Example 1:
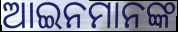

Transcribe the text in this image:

ଆଇନମାନଙ୍କ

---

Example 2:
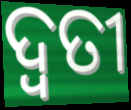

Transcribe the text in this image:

ଦ୍ଵତୀ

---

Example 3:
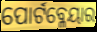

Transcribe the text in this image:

ପୋର୍ଟବ୍ଳେୟାର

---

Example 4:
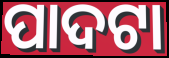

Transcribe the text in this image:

ପାଦଟା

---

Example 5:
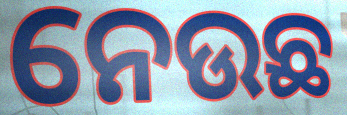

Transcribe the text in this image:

ନେଉଛ